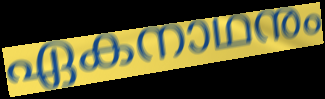
ഏകനാഥനും